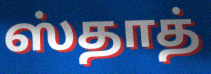
ஸ்தாத்